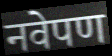
नवेपण